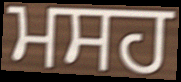
ਮਸਹ